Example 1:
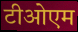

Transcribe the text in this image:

टीओएम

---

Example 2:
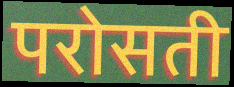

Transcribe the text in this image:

परोसती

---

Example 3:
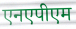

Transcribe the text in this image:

एनएपीएम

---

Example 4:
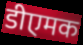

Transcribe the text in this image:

डीएमक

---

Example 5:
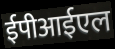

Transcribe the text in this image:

ईपीआईएल